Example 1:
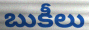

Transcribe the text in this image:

బుకీలు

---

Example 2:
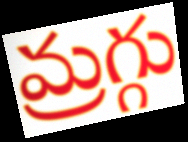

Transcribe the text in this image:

మ్రగ్గు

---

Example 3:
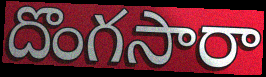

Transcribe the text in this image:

దొంగసారా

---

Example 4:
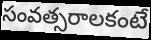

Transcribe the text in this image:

సంవత్సరాలకంటే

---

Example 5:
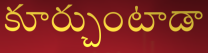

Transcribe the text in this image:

కూర్చుంటాడా